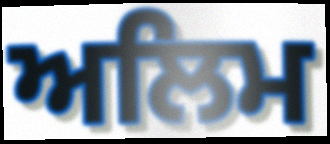
ਅਲਿਮ